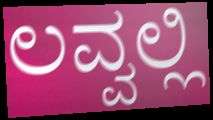
ಲವ್ವಲ್ಲಿ